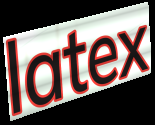
latex